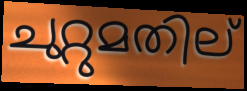
ചുറ്റുമതില്